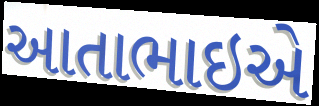
આતાભાઇએ